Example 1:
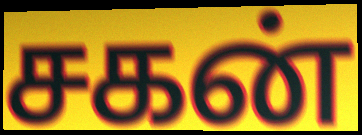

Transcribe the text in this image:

சகன்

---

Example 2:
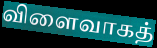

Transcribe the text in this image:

விளைவாகத்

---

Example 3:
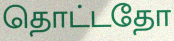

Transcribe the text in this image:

தொட்டதோ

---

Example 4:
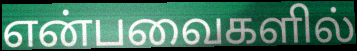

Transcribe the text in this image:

என்பவைகளில்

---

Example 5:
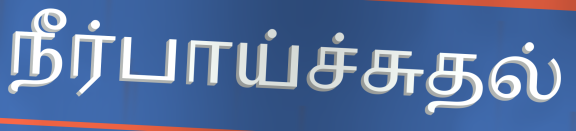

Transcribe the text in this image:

நீர்பாய்ச்சுதல்